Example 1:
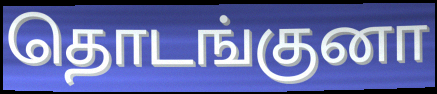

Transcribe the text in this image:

தொடங்குனா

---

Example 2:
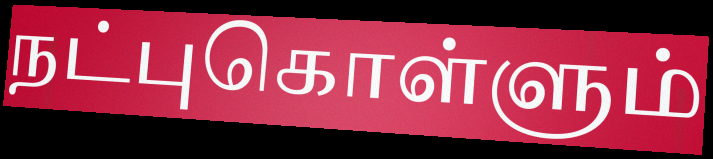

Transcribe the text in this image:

நட்புகொள்ளும்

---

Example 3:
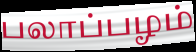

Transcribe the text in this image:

பலாப்பழம்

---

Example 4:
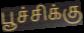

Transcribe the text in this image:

பூச்சிக்கு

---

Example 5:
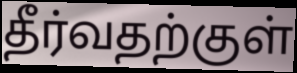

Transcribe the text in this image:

தீர்வதற்குள்